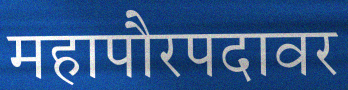
महापौरपदावर